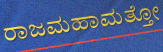
ರಾಜಮಹಾಮತ್ತೋ